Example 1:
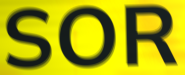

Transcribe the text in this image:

SOR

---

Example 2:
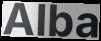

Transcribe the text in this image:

Alba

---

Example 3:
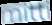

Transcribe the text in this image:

mitti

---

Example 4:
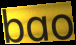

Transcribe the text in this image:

bao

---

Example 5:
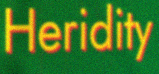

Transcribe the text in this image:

Heridity